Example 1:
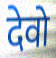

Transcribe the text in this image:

देवो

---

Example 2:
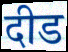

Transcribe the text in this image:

दीड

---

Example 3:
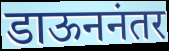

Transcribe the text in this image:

डाऊननंतर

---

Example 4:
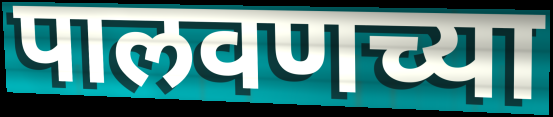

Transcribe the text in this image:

पालवणच्या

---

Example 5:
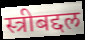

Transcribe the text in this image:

स्त्रीबद्दल